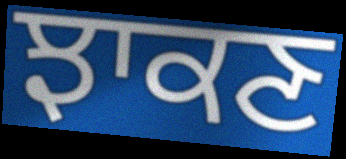
ਝਾਕਣ